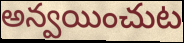
అన్వయించుట